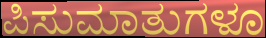
ಪಿಸುಮಾತುಗಳೂ